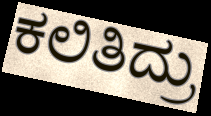
ಕಲಿತಿದ್ರು